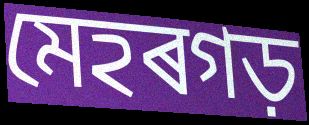
মেহৰগড়